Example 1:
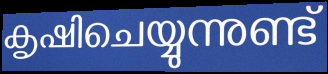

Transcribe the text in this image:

കൃഷിചെയ്യുന്നുണ്ട്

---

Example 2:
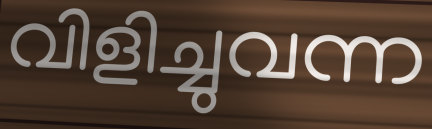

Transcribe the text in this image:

വിളിച്ചുവന്ന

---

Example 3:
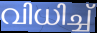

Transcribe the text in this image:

വിധിച്ച്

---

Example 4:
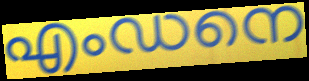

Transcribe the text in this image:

എംഡനെ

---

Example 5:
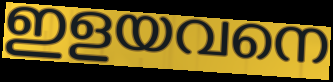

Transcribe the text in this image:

ഇളയവനെ